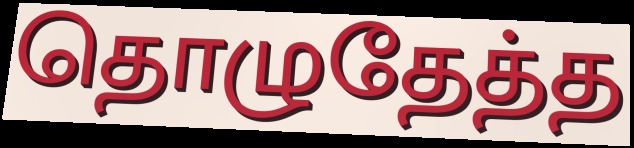
தொழுதேத்த